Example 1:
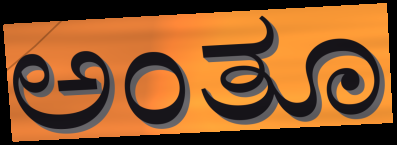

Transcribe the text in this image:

ಅಂತೂ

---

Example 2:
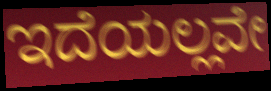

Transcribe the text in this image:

ಇದೆಯಲ್ಲವೇ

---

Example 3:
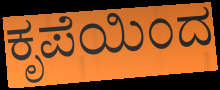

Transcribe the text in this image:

ಕೃಪೆಯಿಂದ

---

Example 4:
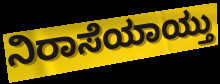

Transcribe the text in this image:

ನಿರಾಸೆಯಾಯ್ತು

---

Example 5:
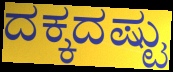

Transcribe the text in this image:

ದಕ್ಕದಷ್ಟು